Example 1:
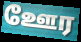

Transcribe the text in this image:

ஊேர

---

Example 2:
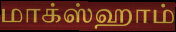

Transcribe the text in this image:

மாக்ஸ்ஹாம்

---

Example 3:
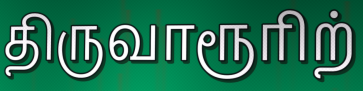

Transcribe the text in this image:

திருவாரூரிற்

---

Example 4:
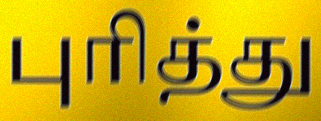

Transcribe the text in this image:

புரித்து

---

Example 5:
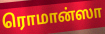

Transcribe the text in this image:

ரொமான்ஸா